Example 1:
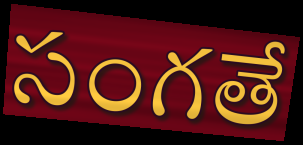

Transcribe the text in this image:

సంగతే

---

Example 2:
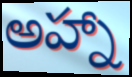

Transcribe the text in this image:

అహ్నా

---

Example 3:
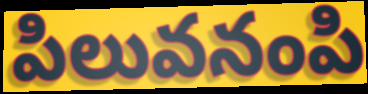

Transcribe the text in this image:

పిలువనంపి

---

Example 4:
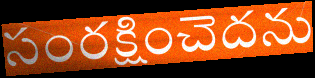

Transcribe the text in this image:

సంరక్షించెదను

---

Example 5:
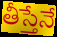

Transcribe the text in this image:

తీస్తేనే